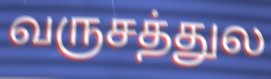
வருசத்துல